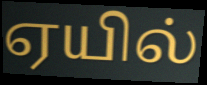
ஏயில்